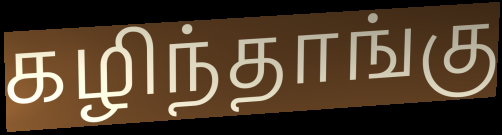
கழிந்தாங்கு